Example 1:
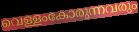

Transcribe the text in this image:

വെള്ളംകോരുന്നവരും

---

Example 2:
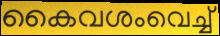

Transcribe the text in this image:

കൈവശംവെച്ച്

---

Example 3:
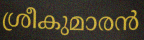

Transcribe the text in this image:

ശ്രീകുമാരൻ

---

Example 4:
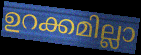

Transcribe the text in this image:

ഉറക്കമില്ലാ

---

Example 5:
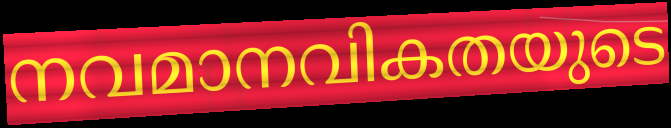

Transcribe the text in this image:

നവമാനവികതയുടെ